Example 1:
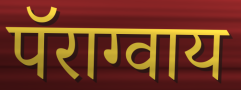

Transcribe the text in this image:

पॅराग्वाय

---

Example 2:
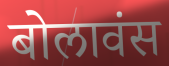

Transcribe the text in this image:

बोलावंस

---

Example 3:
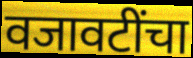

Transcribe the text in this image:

वजावटींचा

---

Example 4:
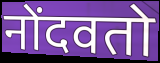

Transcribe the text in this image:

नोंदवतो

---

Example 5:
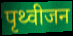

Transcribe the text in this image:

पृथ्वीजन